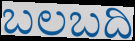
ಬಲಬದಿ